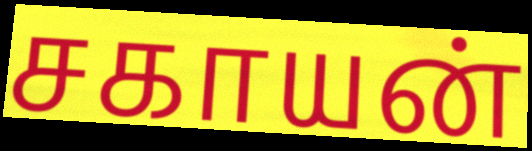
சகாயன்